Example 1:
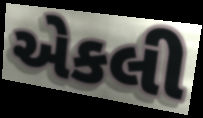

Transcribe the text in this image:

એકલી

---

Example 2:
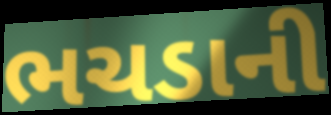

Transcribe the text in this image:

ભચડાની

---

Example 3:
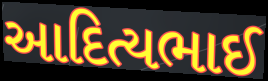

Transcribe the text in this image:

આદિત્યભાઈ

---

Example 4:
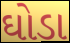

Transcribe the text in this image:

ઘોડા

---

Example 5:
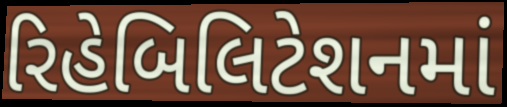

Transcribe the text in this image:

રિહેબિલિટેશનમાં